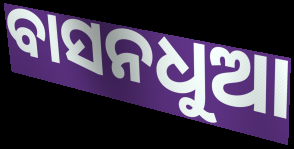
ବାସନଧୁଆ